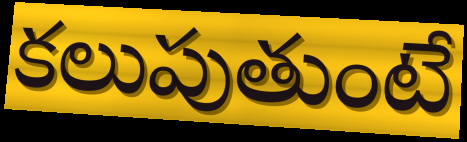
కలుపుతుంటే